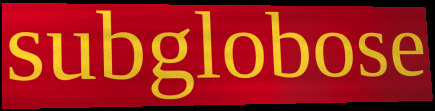
subglobose